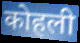
कोहली